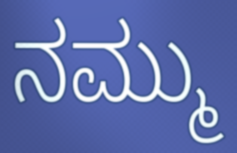
ನಮ್ಮು